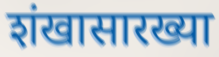
शंखासारख्या